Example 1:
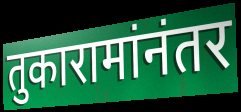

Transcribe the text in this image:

तुकारामांनंतर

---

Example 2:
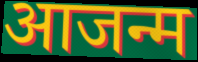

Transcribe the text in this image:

आजन्म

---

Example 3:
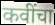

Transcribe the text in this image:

कवींचा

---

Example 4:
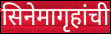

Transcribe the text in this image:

सिनेमागृहांची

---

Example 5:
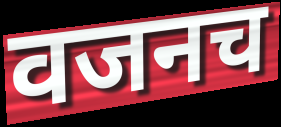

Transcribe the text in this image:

वजनच